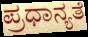
ಪ್ರಧಾನ್ಯತೆ